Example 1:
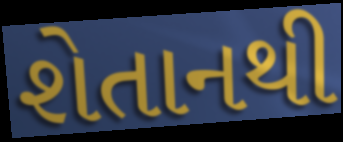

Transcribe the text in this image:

શેતાનથી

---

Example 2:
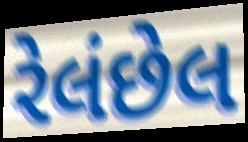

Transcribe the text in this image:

રેલંછેલ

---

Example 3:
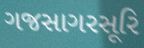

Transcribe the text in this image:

ગજસાગરસૂરિ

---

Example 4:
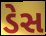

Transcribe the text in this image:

ડેસ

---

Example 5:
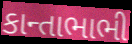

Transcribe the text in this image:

કાન્તાભાભી